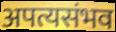
अपत्यसंभव